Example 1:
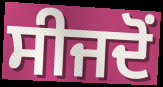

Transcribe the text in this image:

ਸੀਜਦੋਂ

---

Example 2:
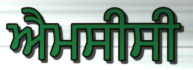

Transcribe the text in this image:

ਐਮਸੀਸੀ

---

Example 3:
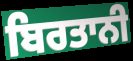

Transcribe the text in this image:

ਬਿਰਤਾਨੀ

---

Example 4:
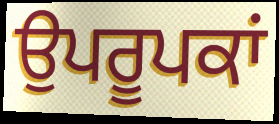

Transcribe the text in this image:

ਉਪਰੂਪਕਾਂ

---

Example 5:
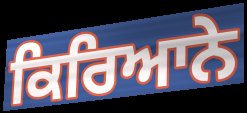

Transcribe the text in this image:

ਕਿਰਿਆਨੇ